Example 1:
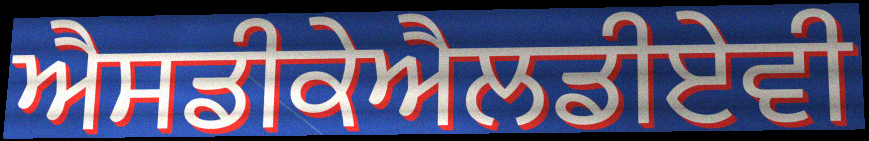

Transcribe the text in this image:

ਐਸਡੀਕੇਐਲਡੀਏਵੀ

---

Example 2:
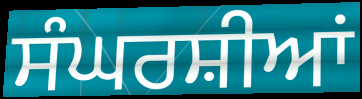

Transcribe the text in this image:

ਸੰਘਰਸ਼ੀਆਂ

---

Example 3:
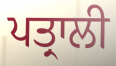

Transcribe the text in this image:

ਪਤ੍ਰਾਲੀ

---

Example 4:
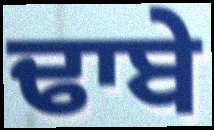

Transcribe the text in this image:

ਢਾਬੇ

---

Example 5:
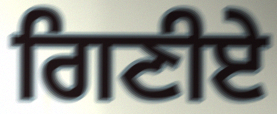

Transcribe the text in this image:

ਗਿਣੀਏ